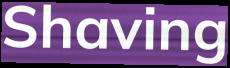
Shaving